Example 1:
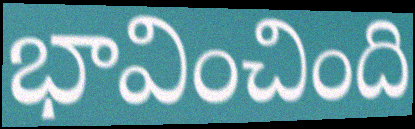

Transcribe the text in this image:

భావించింది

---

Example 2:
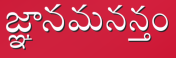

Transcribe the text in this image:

జ్ఞానమనన్తం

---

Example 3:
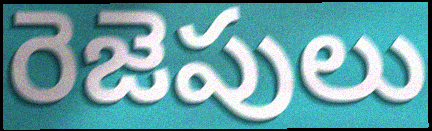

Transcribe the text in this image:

రెజెపులు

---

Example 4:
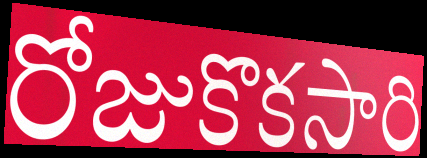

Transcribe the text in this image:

రోజుకొకసారి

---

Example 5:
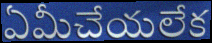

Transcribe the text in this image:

ఏమీచేయలేక